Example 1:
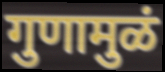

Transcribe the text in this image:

गुणामुळं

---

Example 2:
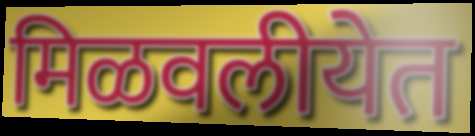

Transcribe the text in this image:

मिळवलीयेत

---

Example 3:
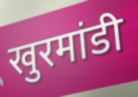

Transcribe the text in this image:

खुरमांडी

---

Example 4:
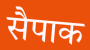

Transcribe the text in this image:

सैपाक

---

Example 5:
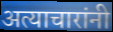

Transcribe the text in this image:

अत्याचारांनी